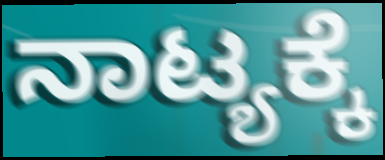
ನಾಟ್ಯಕ್ಕೆ